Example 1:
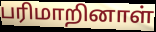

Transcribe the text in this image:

பரிமாறினாள்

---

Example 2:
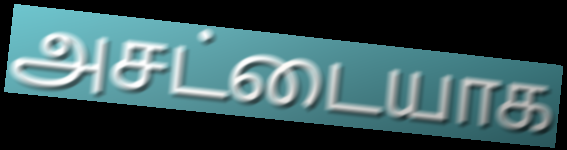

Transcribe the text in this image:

அசட்டையாக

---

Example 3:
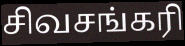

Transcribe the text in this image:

சிவசங்கரி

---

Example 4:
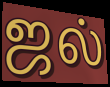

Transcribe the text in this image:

ஜல்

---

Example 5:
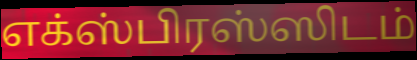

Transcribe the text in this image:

எக்ஸ்பிரஸ்ஸிடம்